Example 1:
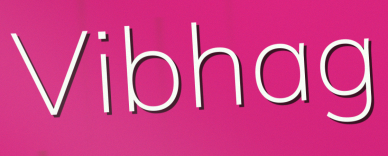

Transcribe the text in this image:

Vibhag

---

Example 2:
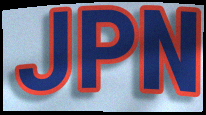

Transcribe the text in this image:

JPN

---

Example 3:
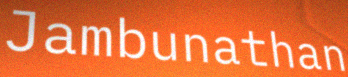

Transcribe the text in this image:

Jambunathan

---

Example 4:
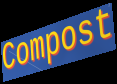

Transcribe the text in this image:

Compost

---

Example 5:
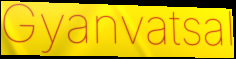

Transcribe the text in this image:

Gyanvatsal